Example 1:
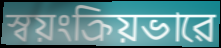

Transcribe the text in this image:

স্বয়ংক্ৰিয়ভাৱে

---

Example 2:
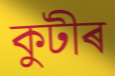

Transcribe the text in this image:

কুটীৰ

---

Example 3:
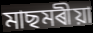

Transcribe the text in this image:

মাছমৰীয়া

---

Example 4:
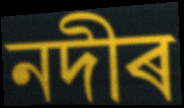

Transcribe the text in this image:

নদীৰ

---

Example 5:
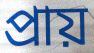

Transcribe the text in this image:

প্ৰায়